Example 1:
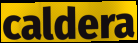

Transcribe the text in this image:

caldera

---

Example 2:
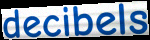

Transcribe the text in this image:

decibels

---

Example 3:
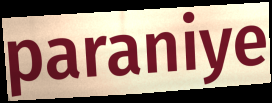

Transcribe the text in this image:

paraniye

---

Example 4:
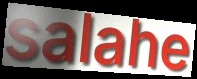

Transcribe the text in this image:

salahe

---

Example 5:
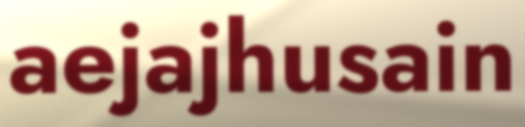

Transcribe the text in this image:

aejajhusain